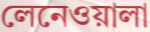
লেনেওয়ালা